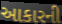
આકારની